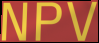
NPV